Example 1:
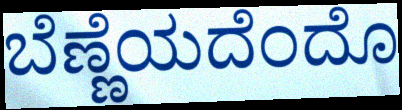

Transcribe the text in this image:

ಬೆಣ್ಣೆಯದೆಂದೊ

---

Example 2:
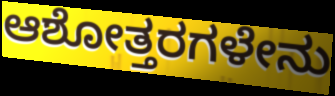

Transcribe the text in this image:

ಆಶೋತ್ತರಗಳೇನು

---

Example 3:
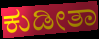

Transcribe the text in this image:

ಕುಡೀತಾ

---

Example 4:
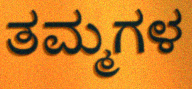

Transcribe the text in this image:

ತಮ್ಮಗಳ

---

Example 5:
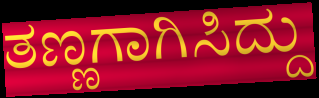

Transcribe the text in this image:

ತಣ್ಣಗಾಗಿಸಿದ್ದು